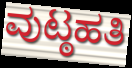
ವುಟ್ಠಹತಿ